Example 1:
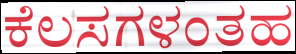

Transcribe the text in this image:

ಕೆಲಸಗಳಂತಹ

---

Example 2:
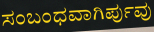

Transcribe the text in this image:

ಸಂಬಂಧವಾಗಿರ್ಪುವು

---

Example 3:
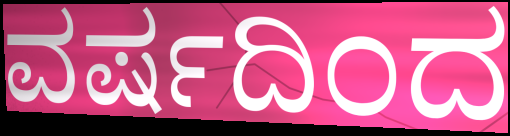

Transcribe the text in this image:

ವರ್ಷದಿಂದ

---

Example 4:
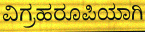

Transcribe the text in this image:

ವಿಗ್ರಹರೂಪಿಯಾಗಿ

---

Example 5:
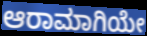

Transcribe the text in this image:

ಆರಾಮಾಗಿಯೇ